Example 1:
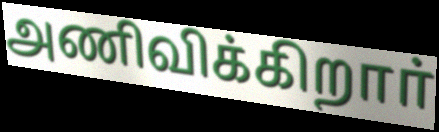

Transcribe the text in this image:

அணிவிக்கிறார்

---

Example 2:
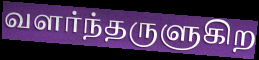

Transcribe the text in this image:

வளர்ந்தருளுகிற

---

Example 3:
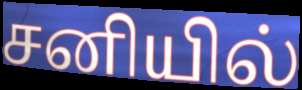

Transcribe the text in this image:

சனியில்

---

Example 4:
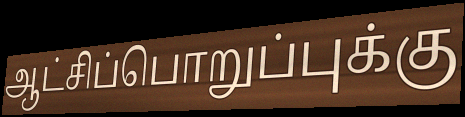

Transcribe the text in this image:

ஆட்சிப்பொறுப்புக்கு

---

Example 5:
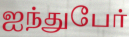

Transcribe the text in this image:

ஐந்துபேர்